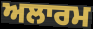
ਅਲਾਰਮ